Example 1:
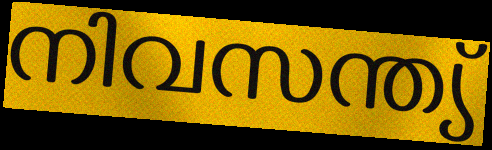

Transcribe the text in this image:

നിവസന്ത്യ്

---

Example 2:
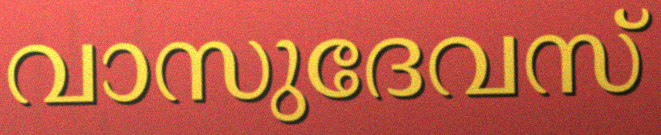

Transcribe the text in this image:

വാസുദേവസ്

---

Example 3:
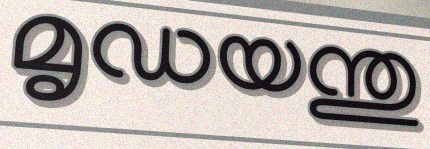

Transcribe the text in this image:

മൃഡയന്തു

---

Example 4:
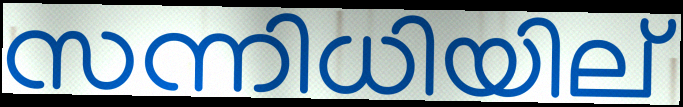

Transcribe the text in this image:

സന്നിധിയില്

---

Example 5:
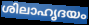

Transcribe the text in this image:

ശിലാഹൃദയം